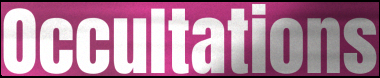
Occultations